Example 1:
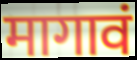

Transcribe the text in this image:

मागावं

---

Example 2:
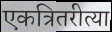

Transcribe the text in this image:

एकत्रितरीत्या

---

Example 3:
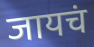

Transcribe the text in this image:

जायचं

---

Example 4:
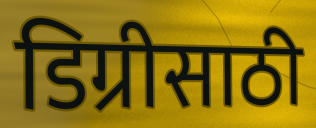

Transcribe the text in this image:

डिग्रीसाठी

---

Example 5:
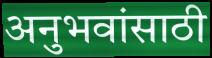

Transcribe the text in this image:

अनुभवांसाठी